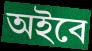
অইবে